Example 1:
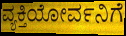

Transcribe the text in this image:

ವ್ಯಕ್ತಿಯೋರ್ವನಿಗೆ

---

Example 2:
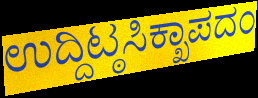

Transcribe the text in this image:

ಉದ್ದಿಟ್ಠಸಿಕ್ಖಾಪದಂ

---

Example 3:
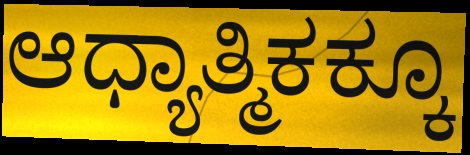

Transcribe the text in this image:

ಆಧ್ಯಾತ್ಮಿಕಕ್ಕೂ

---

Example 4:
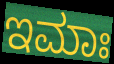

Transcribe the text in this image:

ಇಮಾಃ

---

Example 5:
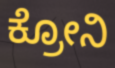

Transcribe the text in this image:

ಕ್ರೋನಿ